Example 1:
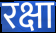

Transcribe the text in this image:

रक्षा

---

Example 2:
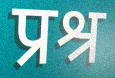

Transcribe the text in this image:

प्रश्र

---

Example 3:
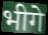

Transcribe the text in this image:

भीगे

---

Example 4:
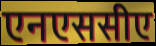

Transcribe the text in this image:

एनएससीए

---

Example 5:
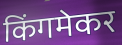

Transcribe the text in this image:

किंगमेकर